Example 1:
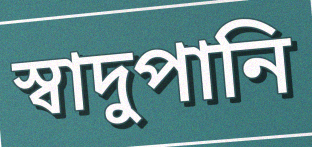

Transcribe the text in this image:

স্বাদুপানি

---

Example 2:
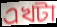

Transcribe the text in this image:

এখটা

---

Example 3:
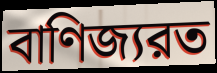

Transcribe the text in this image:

বাণিজ্যরত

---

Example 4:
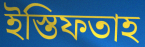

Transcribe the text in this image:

ইস্তিফতাহ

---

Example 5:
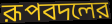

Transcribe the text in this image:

রূপবদলের